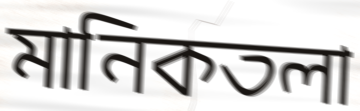
মানিকতলা